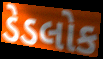
ડેડલોક